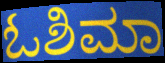
ಓಶಿಮಾ